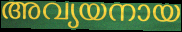
അവ്യയനായ